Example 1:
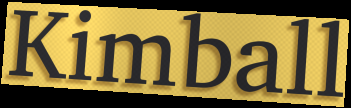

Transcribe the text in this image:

Kimball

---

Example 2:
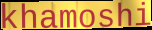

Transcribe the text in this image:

khamoshi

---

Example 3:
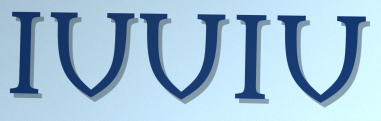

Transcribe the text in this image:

IUUIU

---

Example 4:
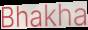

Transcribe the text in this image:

Bhakha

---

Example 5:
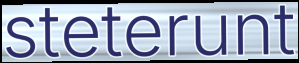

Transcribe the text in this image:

steterunt